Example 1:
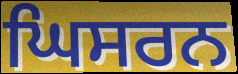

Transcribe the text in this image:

ਘਿਸਰਨ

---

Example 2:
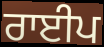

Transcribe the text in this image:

ਰਾਈਪ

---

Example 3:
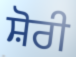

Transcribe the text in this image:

ਸ਼ੋਰੀ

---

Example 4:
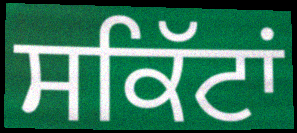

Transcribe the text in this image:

ਸਕਿੱਟਾਂ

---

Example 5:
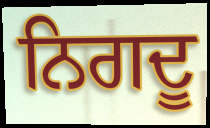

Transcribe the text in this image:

ਨਿਗਦੂ